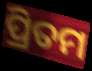
ପ୍ରିତମ